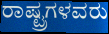
ರಾಷ್ಟ್ರಗಳವರು